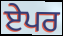
ਏਪਰ